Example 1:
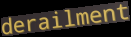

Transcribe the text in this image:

derailment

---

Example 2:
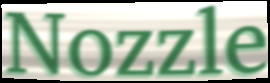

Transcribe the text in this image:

Nozzle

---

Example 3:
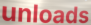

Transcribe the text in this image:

unloads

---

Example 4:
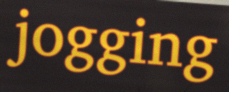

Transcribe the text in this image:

jogging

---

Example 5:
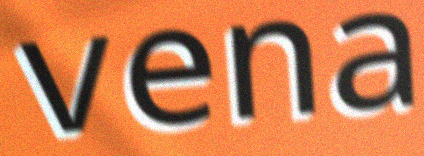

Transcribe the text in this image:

vena